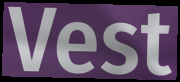
Vest